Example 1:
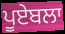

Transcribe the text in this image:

ਪੂਏਬਲਾ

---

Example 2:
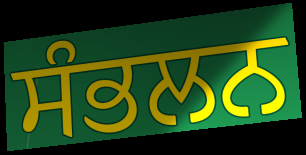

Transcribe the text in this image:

ਸੰਭਲਨ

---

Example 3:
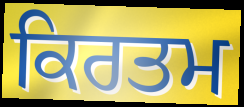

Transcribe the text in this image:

ਕਿਰਤਮ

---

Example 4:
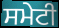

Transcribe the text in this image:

ਸਮੇਟੀ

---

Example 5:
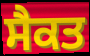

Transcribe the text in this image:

ਸੈਕਤ